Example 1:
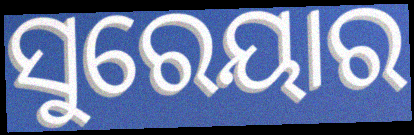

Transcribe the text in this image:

ସୁରେୟାର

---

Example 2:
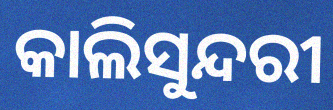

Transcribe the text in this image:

କାଲିସୁନ୍ଦରୀ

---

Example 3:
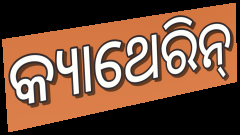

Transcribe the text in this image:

କ୍ୟାଥେରିନ୍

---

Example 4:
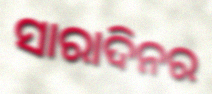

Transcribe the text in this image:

ସାରାଦିନର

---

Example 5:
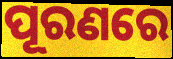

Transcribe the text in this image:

ପୂରଣରେ